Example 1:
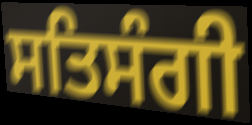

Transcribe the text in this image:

ਸਤਿਸੰਗੀ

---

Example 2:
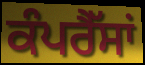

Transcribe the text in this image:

ਕੰਪਰੈੱਸਾਂ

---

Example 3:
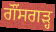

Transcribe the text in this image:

ਗੌਂਸਗੜ੍ਹ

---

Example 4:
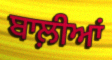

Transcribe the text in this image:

ਬਾਲ਼ੀਆਂ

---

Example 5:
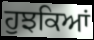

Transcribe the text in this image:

ਹੁਝਕਿਆਂ